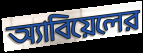
অ্যাবিয়েলের